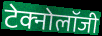
टेक्‍नोलॉजी